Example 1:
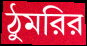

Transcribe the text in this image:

ঠুমরির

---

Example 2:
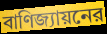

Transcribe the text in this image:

বাণিজ্যায়নের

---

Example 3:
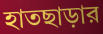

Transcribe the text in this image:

হাতছাড়ার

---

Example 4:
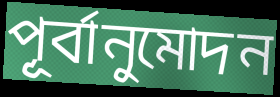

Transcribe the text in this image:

পূর্বানুমোদন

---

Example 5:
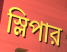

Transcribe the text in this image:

স্লিপার